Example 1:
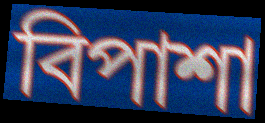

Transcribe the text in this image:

বিপাশা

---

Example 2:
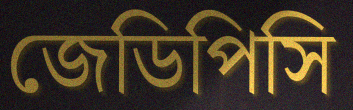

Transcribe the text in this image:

জেডিপিসি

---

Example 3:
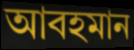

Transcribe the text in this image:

আবহমান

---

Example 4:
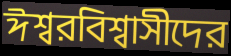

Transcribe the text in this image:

ঈশ্বরবিশ্বাসীদের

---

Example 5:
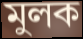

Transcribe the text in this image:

মুলক